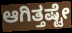
ಆಗಿತ್ತಷ್ಟೇ